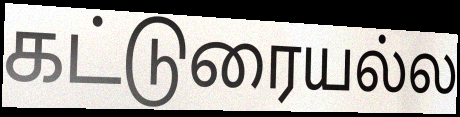
கட்டுரையல்ல